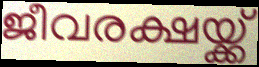
ജീവരക്ഷയ്ക്ക്